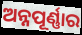
ଅନ୍ନପୂର୍ଣ୍ଣାର